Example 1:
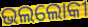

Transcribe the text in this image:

ଭଲଲୋକୀ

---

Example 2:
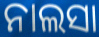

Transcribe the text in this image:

ନାଲସା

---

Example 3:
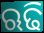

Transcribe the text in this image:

ଋଢି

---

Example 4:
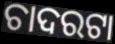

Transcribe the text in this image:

ଚାଦରଟା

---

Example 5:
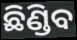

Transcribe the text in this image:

ଛିଣ୍ଡିବ